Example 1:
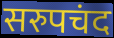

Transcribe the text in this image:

सरुपचंद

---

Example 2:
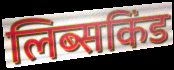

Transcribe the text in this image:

लिब्सकिंड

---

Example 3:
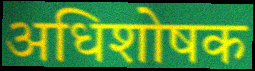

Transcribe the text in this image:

अधिशोषक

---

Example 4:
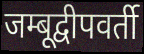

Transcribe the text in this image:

जम्बूद्वीपवर्ती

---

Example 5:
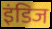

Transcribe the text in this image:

इंडिज